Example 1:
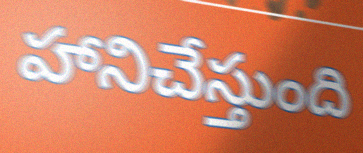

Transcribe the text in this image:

హానిచేస్తుంది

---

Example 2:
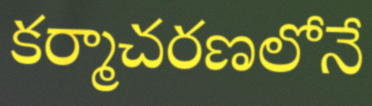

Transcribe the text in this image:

కర్మాచరణలోనే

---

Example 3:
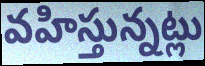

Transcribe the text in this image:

వహిస్తున్నట్లు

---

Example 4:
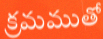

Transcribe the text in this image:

క్రమముతో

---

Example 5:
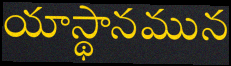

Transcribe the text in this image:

యాస్థానమున